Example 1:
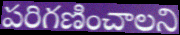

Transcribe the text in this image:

పరిగణించాలని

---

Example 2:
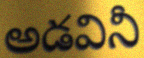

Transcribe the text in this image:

అడవినీ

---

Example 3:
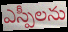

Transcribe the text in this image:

ఎస్పీలను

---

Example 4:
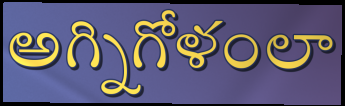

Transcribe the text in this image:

అగ్నిగోళంలా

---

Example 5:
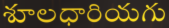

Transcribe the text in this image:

శూలధారియగు